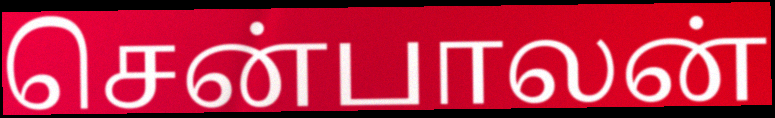
சென்பாலன்